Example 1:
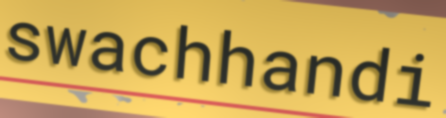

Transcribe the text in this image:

swachhandi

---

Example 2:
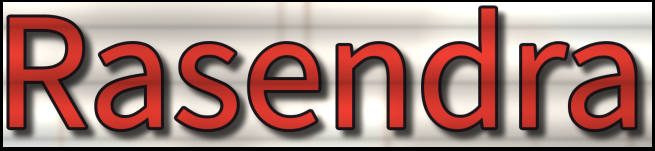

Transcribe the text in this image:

Rasendra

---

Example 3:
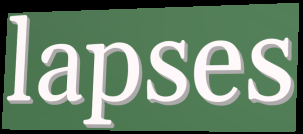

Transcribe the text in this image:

lapses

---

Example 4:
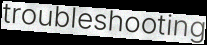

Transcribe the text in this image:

troubleshooting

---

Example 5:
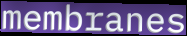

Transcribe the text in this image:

membranes